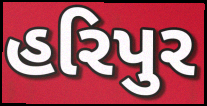
હરિપુર